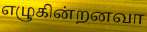
எழுகின்றனவா